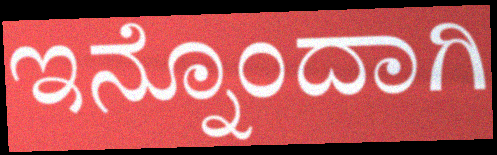
ಇನ್ನೊಂದಾಗಿ